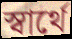
স্বার্থে